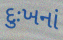
દુઃખનાં